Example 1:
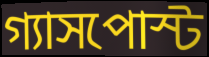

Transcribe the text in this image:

গ্যাসপোস্ট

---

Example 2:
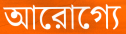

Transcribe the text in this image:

আরোগ্যে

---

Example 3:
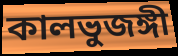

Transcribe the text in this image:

কালভুজঙ্গী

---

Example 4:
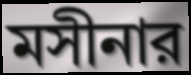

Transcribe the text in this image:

মসীনার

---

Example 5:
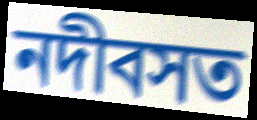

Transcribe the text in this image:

নদীবসত